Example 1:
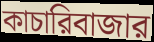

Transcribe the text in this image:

কাচারিবাজার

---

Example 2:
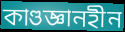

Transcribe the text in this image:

কাণ্ডজ্ঞানহীন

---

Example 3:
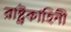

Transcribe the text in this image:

রাষ্ট্রকাহিনী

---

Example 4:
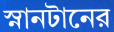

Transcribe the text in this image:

স্নানটানের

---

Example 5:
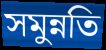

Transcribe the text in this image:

সমুন্নতি